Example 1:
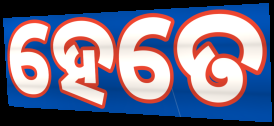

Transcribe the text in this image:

ହେତେ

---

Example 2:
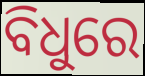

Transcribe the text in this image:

ବିଧୁରେ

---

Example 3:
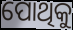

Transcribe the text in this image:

ପୋଥିକୁ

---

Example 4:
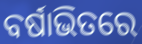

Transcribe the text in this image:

ବର୍ଷାଭିତରେ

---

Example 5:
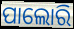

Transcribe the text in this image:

ପାଲୋରି